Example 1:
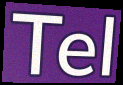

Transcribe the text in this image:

Tel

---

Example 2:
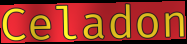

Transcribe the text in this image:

Celadon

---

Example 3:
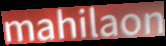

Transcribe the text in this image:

mahilaon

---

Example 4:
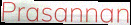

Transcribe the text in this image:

Prasannan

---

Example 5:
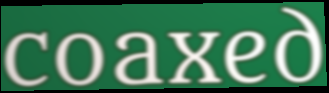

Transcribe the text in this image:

coaxed